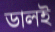
ডালই